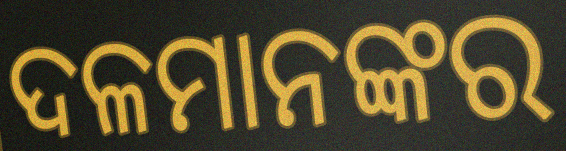
ଦଳମାନଙ୍କର